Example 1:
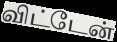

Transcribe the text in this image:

விட்டேன்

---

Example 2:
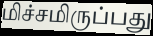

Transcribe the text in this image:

மிச்சமிருப்பது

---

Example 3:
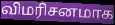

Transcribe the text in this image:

விமரிசனமாக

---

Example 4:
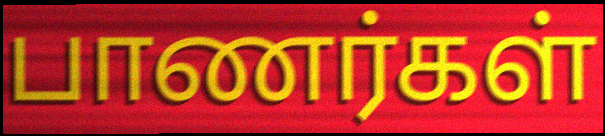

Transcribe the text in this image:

பாணர்கள்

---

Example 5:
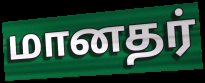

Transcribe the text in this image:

மானதர்